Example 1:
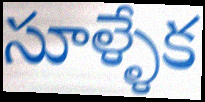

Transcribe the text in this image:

సూళ్ళేక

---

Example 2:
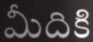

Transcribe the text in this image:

మీదికి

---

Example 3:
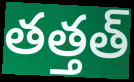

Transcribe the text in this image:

తత్తత్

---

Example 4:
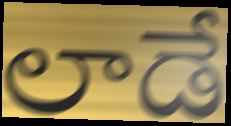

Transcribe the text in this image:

లాడే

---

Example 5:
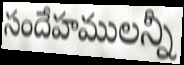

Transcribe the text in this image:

సందేహములన్నీ